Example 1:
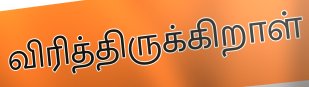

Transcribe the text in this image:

விரித்திருக்கிறாள்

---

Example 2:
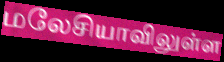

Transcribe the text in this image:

மலேசியாவிலுள்ள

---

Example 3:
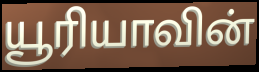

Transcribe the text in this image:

யூரியாவின்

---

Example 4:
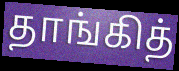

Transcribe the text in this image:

தாங்கித்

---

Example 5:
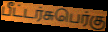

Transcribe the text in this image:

பீட்டர்சுபெர்கு